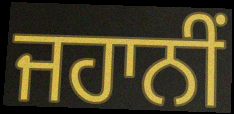
ਜਹਾਨੀਂ